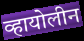
व्हायोलीन